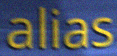
alias